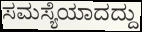
ಸಮಸ್ಯೆಯಾದದ್ದು